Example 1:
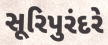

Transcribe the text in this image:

સૂરિપુરંદરે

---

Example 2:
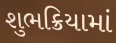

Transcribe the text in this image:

શુભક્રિયામાં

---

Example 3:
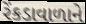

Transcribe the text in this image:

રેંકડાવાળાને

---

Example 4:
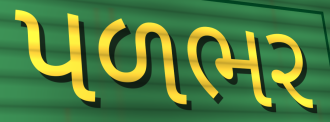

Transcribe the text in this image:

પળભર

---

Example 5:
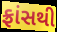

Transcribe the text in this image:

ફ્રાંસથી